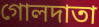
গোলদাতা